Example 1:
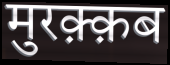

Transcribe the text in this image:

मुरक़्क़ब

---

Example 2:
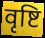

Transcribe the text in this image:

वृष्टि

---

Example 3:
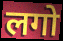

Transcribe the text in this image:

लगो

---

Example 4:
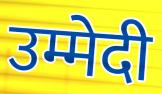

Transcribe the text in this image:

उम्मेदी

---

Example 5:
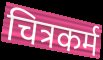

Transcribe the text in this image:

चित्रकर्म